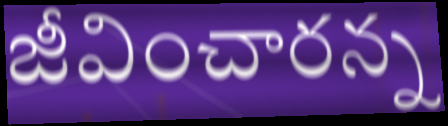
జీవించారన్న